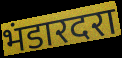
भंडारदरा